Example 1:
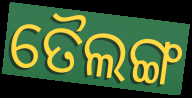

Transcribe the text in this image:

ତୈଲଙ୍ଗ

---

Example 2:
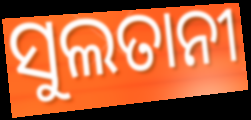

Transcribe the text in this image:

ସୁଲତାନୀ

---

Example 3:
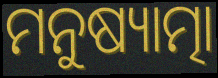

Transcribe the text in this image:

ମନୁଷ୍ୟାତ୍ମା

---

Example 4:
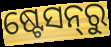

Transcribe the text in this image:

ଷ୍ଟେସନ୍‌ରୁ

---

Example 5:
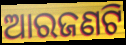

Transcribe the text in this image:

ଆରଜଣଟି